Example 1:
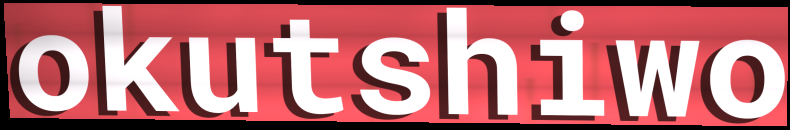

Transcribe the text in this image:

okutshiwo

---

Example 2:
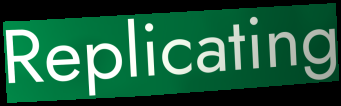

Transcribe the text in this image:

Replicating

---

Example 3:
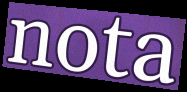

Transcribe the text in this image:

nota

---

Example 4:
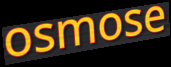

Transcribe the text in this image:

osmose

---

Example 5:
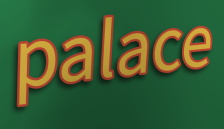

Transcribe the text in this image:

palace